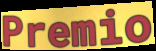
Premio